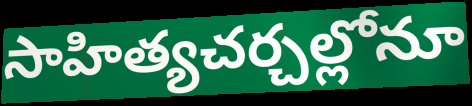
సాహిత్యచర్చల్లోనూ